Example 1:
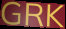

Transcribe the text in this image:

GRK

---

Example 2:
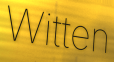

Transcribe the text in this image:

Witten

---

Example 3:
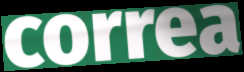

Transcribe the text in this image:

correa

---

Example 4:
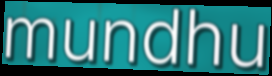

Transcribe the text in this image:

mundhu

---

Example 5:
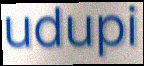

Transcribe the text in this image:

udupi